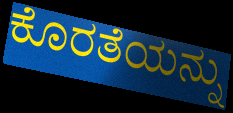
ಕೊರತೆಯನ್ನು